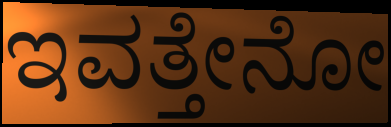
ಇವತ್ತೇನೋ